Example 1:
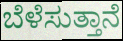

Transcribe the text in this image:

ಬೆಳೆಸುತ್ತಾನೆ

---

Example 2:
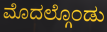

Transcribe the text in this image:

ಮೊದಲ್ಗೊಂಡು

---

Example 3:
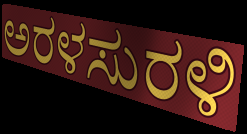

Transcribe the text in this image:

ಅರಳಸುರಳಿ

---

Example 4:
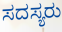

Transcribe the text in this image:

ಸದಸ್ಯರು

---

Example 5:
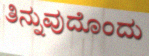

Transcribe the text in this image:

ತಿನ್ನುವುದೊಂದು